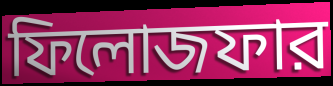
ফিলোজফার